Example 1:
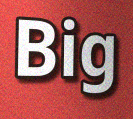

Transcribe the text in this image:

Big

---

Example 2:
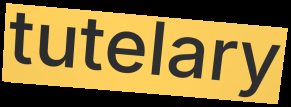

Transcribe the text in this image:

tutelary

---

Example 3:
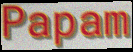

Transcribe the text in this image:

Papam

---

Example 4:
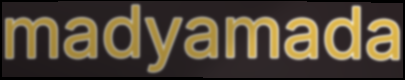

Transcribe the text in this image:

madyamada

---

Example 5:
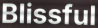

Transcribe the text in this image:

Blissful